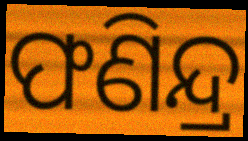
ଫଣିନ୍ଦ୍ର